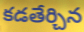
కడతేర్చిన